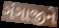
ગંગાજીને